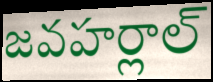
జవహర్లాల్